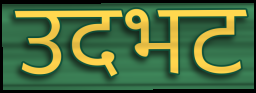
उदभट